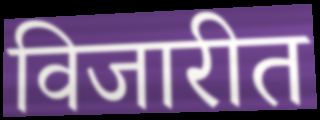
विजारीत